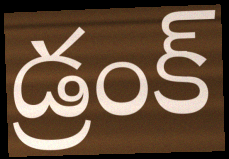
డ్రంక్